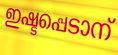
ഇഷ്ടപ്പെടാന്